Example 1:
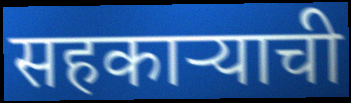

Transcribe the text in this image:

सहकाऱ्याची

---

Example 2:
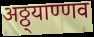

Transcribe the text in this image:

अठ्ठ्याण्णव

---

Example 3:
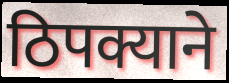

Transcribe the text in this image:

ठिपक्याने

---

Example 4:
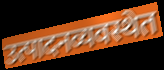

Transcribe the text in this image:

उत्पादनव्यवस्थेत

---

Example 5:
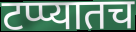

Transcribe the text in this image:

टप्प्यातच